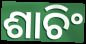
ଶାଚିଂ